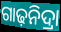
ଗାଢ଼ନିଦ୍ରା